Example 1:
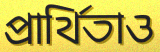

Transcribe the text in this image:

প্রার্থিতাও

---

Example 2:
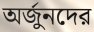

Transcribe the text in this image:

অর্জুনদের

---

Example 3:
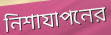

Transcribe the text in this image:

নিশাযাপনের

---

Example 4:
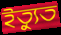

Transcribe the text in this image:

ইত্যুত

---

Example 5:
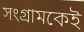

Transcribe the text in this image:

সংগ্রামকেই